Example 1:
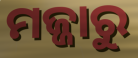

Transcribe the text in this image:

ମଜ୍ଜାରୁ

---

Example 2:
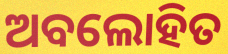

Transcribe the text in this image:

ଅବଲୋହିତ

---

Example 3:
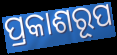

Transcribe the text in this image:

ପ୍ରକାଶରୂପ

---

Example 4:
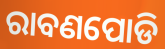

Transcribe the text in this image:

ରାବଣପୋଡି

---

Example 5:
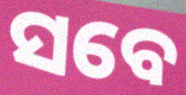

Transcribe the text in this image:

ସବେ